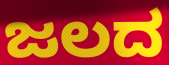
ಜಲದ